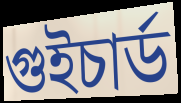
গুইচার্ড